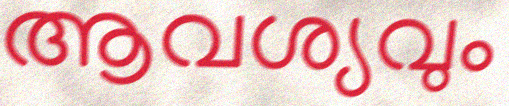
ആവശ്യവും